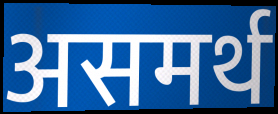
असमर्थ